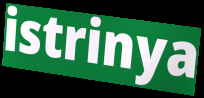
istrinya